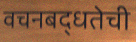
वचनबद्धतेची